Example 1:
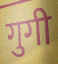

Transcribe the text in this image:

गुगी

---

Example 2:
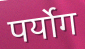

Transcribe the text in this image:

पर्योग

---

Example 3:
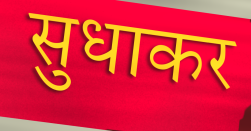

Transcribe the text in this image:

सुधाकर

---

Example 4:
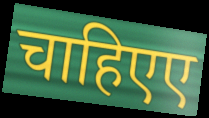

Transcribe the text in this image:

चाहिएए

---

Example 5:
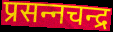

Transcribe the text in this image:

प्रसन्नचन्द्र